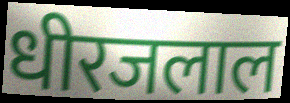
धीरजलाल